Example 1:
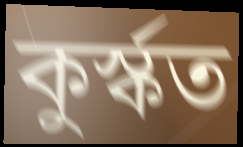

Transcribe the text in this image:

কুৰ্স্কত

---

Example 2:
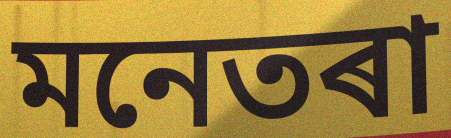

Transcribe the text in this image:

মনেতৰা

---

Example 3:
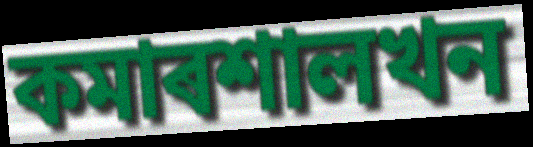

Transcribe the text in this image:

কমাৰশালখন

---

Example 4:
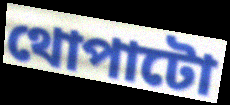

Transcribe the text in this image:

থোপাটো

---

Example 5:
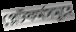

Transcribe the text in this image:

প্লেটফৰ্মসমূহে